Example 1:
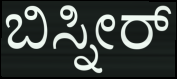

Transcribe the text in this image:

ಬಿಸ್ನೀರ್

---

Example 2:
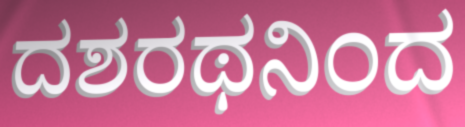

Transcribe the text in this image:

ದಶರಥನಿಂದ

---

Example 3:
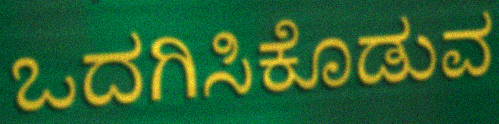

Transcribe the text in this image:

ಒದಗಿಸಿಕೊಡುವ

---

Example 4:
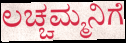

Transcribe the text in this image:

ಲಚ್ಚಮ್ಮನಿಗೆ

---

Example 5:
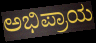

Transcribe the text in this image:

ಅಭಿಪ್ರಾಯ